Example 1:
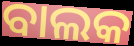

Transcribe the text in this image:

ବାଲକ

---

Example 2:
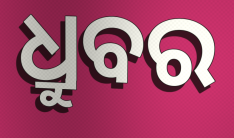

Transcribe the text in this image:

ଧ୍ରୁବର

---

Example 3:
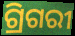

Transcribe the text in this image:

ଗ୍ରିଗରୀ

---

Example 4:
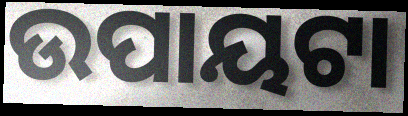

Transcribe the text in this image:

ଉପାୟଟା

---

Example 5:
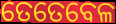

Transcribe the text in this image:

ତେତେବେଳ